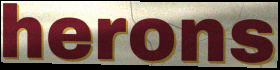
herons